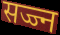
सज्ज्न